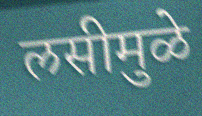
लसीमुळे